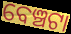
ବେଞ୍ଚଟା